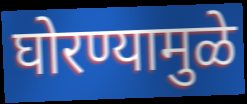
घोरण्यामुळे